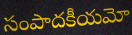
సంపాదకీయమో